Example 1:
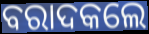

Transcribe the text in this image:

ବରାଦକଲେ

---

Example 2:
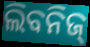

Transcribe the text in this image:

ଲିବନିଜ୍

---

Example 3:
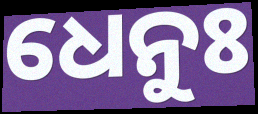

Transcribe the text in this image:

ଧେନୁଃ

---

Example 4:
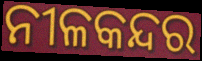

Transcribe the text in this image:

ନୀଳକନ୍ଦର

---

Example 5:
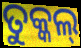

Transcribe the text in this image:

ତୁକ୍କଲ୍